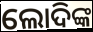
ଲୋଦିଙ୍କ